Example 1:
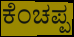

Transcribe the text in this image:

ಕೆಂಚಪ್ಪ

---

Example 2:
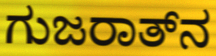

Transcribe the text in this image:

ಗುಜರಾತ್‍ನ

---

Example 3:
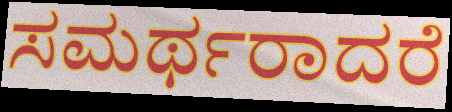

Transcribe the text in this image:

ಸಮರ್ಥರಾದರೆ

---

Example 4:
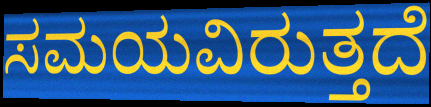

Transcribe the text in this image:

ಸಮಯವಿರುತ್ತದೆ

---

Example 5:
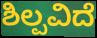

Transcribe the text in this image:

ಶಿಲ್ಪವಿದೆ